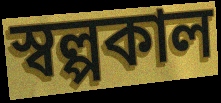
স্বল্পকাল